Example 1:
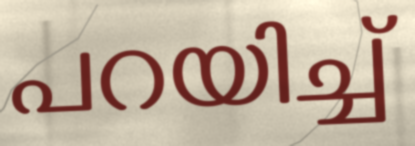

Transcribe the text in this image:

പറയിച്ച്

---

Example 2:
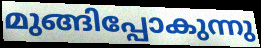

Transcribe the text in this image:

മുങ്ങിപ്പോകുന്നു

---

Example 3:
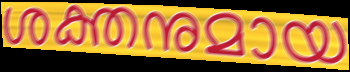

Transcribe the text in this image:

ശക്തനുമായ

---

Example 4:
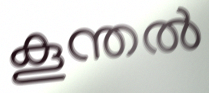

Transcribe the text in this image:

കൂന്തൽ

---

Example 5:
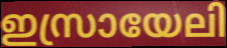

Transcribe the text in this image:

ഇസ്രായേലി